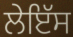
ਲੇਇੱਸ